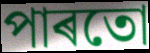
পাৰতো